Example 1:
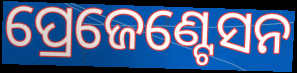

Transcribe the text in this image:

ପ୍ରେଜେଣ୍ଟେସନ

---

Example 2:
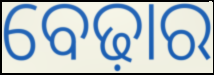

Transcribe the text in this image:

ବେଢ଼ାର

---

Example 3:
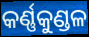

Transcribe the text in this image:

କର୍ଣ୍ଣକୁଣ୍ଡଳ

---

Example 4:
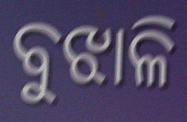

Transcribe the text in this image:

ବୁଝାଳି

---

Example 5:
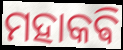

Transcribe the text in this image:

ମହାକଵି